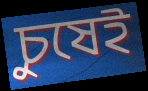
চুষেই